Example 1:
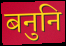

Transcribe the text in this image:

बनुनि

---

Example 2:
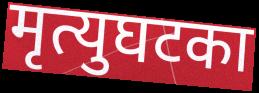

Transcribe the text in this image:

मृत्युघटका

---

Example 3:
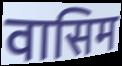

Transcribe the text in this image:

वासिम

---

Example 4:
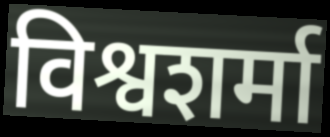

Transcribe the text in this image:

विश्वशर्मा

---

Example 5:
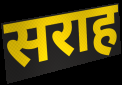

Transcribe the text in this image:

सराह